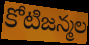
కోటిజన్మల